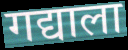
गद्याला